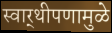
स्वार्थीपणामुळे